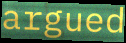
argued